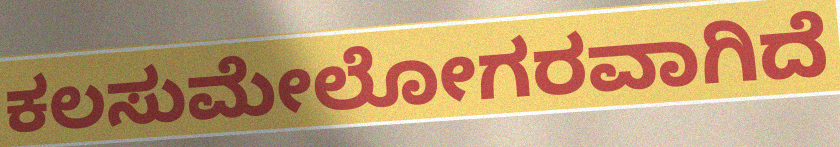
ಕಲಸುಮೇಲೋಗರವಾಗಿದೆ